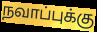
நவாப்புக்கு